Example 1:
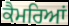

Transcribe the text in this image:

ਕੈਮਰਿਆਂ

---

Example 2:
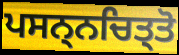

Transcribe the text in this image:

ਪਸਨ੍ਨਚਿਤ੍ਤੋ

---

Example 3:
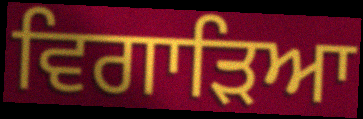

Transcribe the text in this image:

ਵਿਗਾੜਿਆ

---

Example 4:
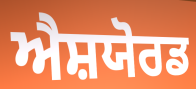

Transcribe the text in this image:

ਐਸ਼ਯੋਰਡ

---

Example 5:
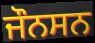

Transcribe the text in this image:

ਜੌਨਸਨ